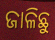
ଜାଳିଛୁ